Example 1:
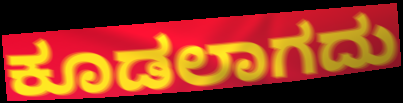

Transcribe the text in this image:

ಕೂಡಲಾಗದು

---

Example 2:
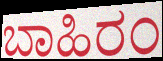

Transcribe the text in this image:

ಬಾಹಿರಂ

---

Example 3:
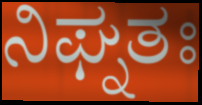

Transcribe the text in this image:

ನಿಘ್ನತಃ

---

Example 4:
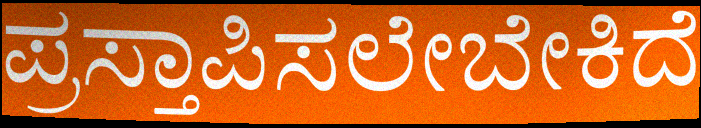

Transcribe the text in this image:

ಪ್ರಸ್ತಾಪಿಸಲೇಬೇಕಿದೆ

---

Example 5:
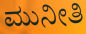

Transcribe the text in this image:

ಮುನೀತಿ